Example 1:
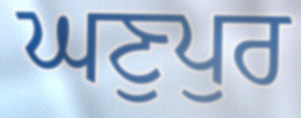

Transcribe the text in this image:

ਘਣੁਪੁਰ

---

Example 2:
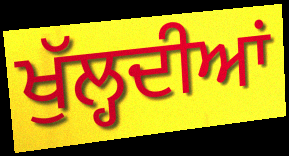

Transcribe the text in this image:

ਖੁੱਲ੍ਹਦੀਆਂ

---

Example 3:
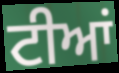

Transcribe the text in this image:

ਟੀਆਂ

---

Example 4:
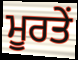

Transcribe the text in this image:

ਮੂਰਤੇਂ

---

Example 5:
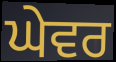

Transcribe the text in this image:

ਘੇਵਰ